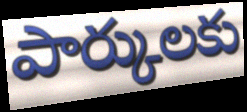
పార్కులకు